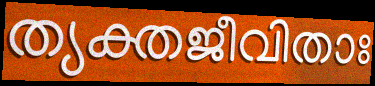
ത്യക്തജീവിതാഃ